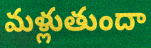
మళ్లుతుందా